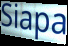
Siapa